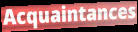
Acquaintances